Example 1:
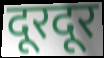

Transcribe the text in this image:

दूरदूर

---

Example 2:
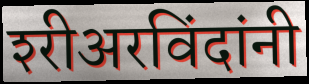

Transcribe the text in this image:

श्रीअरविंदांनी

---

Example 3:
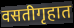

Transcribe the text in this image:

वसतीगृहात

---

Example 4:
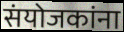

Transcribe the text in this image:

संयोजकांना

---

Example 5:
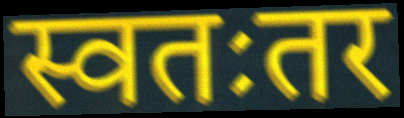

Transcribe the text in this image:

स्वतःतर